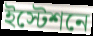
ইস্টেশনে